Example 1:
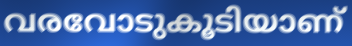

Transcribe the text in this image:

വരവോടുകൂടിയാണ്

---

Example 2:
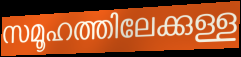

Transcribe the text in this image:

സമൂഹത്തിലേക്കുള്ള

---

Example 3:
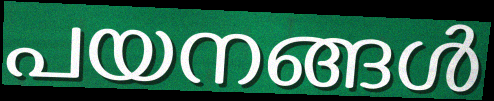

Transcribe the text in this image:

പയനങ്ങൾ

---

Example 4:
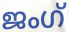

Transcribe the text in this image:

ജംഗ്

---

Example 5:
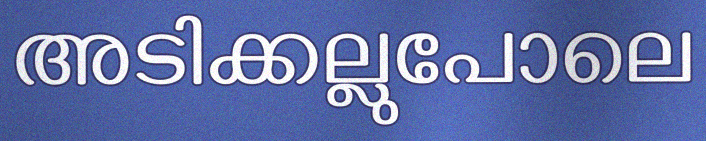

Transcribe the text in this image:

അടിക്കല്ലുപോലെ